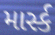
માર્સ્ક